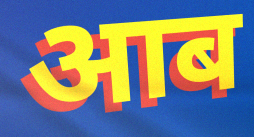
आब